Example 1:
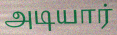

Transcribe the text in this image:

அடியார்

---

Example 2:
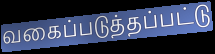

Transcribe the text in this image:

வகைப்படுத்தப்பட்டு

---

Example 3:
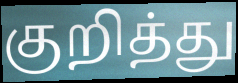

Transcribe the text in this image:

குறித்து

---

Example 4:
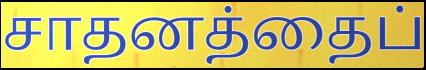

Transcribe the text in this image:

சாதனத்தைப்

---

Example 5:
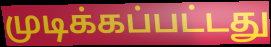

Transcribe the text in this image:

முடிக்கப்பட்டது